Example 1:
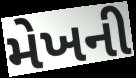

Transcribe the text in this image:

મેખની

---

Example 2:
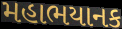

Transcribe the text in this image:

મહાભયાનક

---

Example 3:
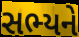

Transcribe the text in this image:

સભ્યને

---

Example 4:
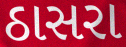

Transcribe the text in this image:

ઠાસરા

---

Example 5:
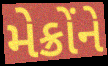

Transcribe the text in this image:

મેક્રોંને